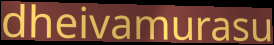
dheivamurasu